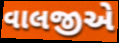
વાલજીએ